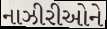
નાઝીરીઓને